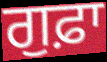
ਗੁਫ਼ਾ